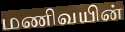
மணிவயின்